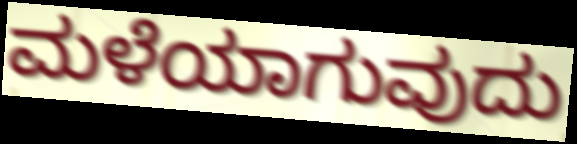
ಮಳೆಯಾಗುವುದು